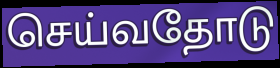
செய்வதோடு